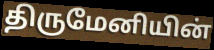
திருமேனியின்